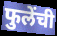
फुलेंची